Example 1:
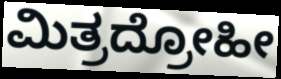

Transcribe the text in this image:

ಮಿತ್ರದ್ರೋಹೀ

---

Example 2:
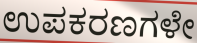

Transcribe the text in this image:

ಉಪಕರಣಗಳೇ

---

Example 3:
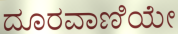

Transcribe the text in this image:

ದೂರವಾಣಿಯೇ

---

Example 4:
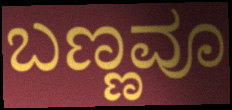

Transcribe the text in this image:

ಬಣ್ಣವೂ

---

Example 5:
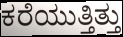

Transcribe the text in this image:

ಕರೆಯುತ್ತಿತ್ತು